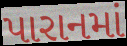
પારાનમાં